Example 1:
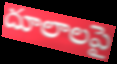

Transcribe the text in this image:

దూలాలపై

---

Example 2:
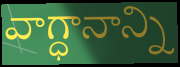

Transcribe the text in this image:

వాగ్ధానాన్ని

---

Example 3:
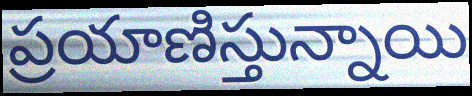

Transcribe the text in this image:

ప్రయాణిస్తున్నాయి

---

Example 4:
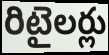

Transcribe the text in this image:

రిటైలర్లు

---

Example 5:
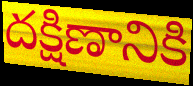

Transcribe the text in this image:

దక్షిణానికి